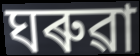
ঘৰুৱা